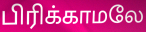
பிரிக்காமலே